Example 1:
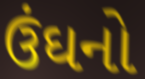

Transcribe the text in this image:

ઉંઘનો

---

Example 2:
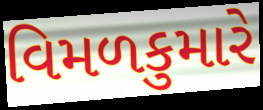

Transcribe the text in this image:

વિમળકુમારે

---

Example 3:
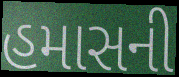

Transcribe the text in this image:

હમાસની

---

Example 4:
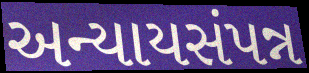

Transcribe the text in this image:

અન્યાયસંપન્ન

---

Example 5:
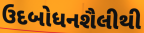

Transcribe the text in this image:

ઉદબોધનશૈલીથી